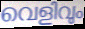
വെളിവും